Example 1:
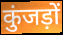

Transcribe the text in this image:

कुंजड़ों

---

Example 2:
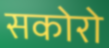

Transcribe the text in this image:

सकोरो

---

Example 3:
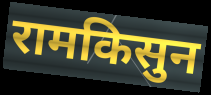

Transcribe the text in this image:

रामकिसुन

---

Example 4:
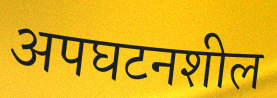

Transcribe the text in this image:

अपघटनशील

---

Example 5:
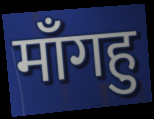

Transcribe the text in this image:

माँगहु